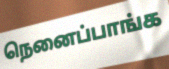
நெனைப்பாங்க